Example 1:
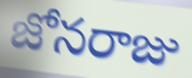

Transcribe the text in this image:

జోనరాజు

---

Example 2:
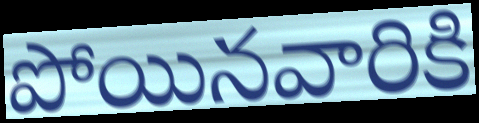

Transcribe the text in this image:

పోయినవారికి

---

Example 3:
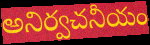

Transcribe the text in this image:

అనిర్వచనీయం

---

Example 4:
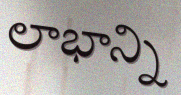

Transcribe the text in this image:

లాభాన్ని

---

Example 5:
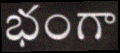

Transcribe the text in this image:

భంగా